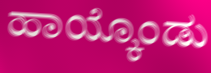
ಹಾಯ್ಕೊಂಡು